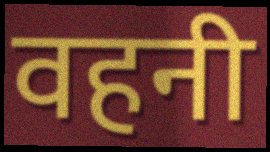
वहनी